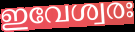
ഇവേശ്വരഃ